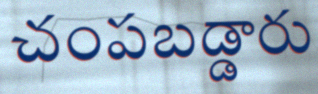
చంపబడ్డారు